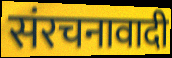
संरचनावादी